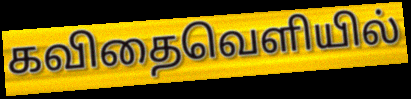
கவிதைவெளியில்